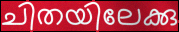
ചിതയിലേക്കു